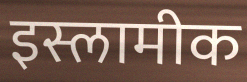
इस्लामीक